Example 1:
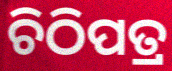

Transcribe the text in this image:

ଚିଠିପତ୍ର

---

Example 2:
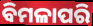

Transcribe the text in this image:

ବିମଳାପରି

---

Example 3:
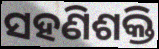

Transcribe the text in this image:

ସହଣିଶକ୍ତି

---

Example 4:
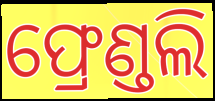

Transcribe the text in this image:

ଫ୍ରେଣ୍ଡଲି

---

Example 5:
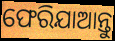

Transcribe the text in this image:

ଫେରିଯାଆନ୍ତୁ